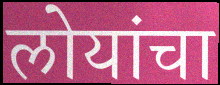
लोयांचा